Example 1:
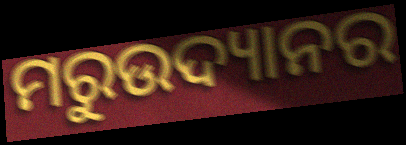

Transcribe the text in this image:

ମରୁଉଦ୍ୟାନର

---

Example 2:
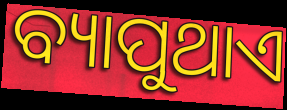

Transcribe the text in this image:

ବ୍ୟାପୁଥାଏ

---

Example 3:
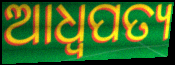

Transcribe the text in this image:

ଆଧ୍ଵପତ୍ୟ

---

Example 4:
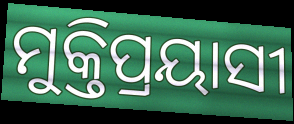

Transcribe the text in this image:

ମୁକ୍ତିପ୍ରୟାସୀ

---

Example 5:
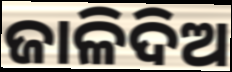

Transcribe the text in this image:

ଜାଳିଦିଅ